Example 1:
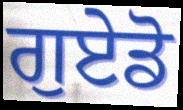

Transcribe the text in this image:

ਗੁਏਡੋ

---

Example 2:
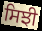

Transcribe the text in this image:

ਸਿਝੀ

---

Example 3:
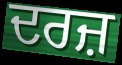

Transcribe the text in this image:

ਦਰਜ਼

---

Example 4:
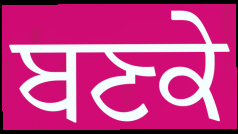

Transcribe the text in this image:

ਬਣਕੇ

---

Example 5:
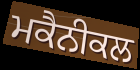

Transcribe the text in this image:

ਮਕੈਨੀਕਲ